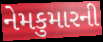
નેમકુમારની